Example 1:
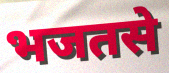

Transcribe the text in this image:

भजतसे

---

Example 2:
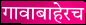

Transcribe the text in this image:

गावाबाहेरच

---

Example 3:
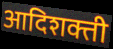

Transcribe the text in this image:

आदिशक्ती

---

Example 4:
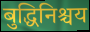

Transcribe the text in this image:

बुद्धिनिश्चय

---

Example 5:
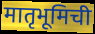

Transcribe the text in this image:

मातृभूमिची